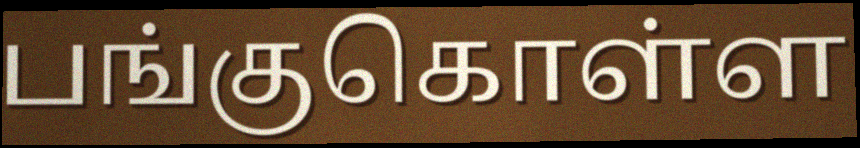
பங்குகொள்ள